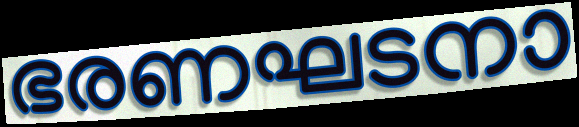
ഭരണഘടനാ